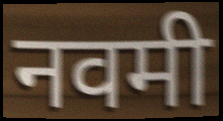
नवमी